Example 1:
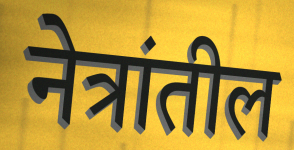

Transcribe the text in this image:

नेत्रांतील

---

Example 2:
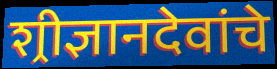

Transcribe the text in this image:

श्रीज्ञानदेवांचे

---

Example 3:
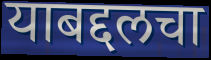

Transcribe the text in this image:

याबद्दलचा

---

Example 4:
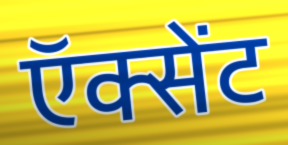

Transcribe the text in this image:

ऍक्सेंट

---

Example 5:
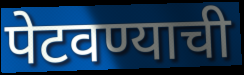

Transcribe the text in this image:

पेटवण्याची